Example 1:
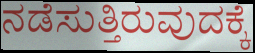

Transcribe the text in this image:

ನಡೆಸುತ್ತಿರುವುದಕ್ಕೆ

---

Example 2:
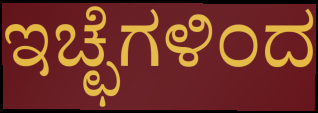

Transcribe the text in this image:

ಇಚ್ಛೆಗಳಿಂದ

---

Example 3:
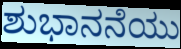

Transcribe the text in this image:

ಶುಭಾನನೆಯು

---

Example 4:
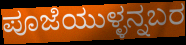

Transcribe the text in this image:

ಪೂಜೆಯುಳ್ಳನ್ನಬರ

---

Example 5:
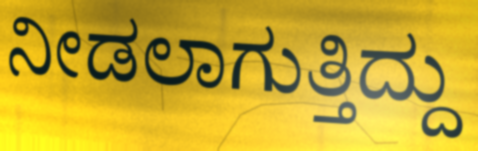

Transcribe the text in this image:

ನೀಡಲಾಗುತ್ತಿದ್ದು